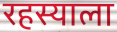
रहस्याला